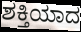
ಶಕ್ತಿಯಾದ